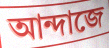
আন্দাজে